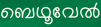
ബെഥൂവേൽ